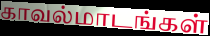
காவல்மாடங்கள்